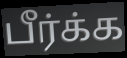
பீர்க்க